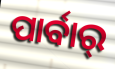
ପାର୍ବାର୍